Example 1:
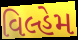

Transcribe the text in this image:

વિલ્હેમ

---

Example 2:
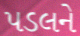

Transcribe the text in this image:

પડલને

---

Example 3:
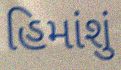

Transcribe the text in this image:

હિમાંશું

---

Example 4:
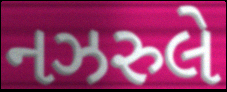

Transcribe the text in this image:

નઝરુલે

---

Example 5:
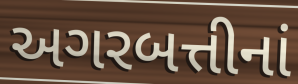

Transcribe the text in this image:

અગરબત્તીનાં